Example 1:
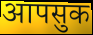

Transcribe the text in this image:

आपसुक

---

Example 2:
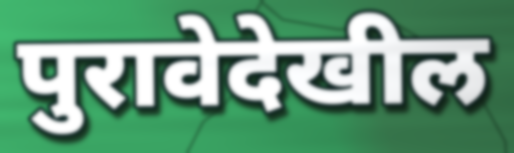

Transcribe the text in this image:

पुरावेदेखील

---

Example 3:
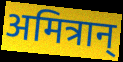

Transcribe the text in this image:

अमित्रान्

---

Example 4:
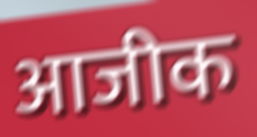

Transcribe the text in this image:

आजीक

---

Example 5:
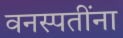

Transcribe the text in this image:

वनस्‍पतींना